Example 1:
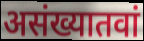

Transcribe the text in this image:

असंख्यातवां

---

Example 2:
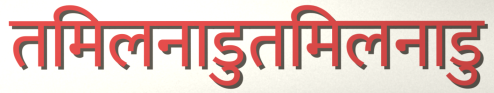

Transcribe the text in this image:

तमिलनाडुतमिलनाडु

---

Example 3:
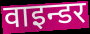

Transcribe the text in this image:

वाइन्डर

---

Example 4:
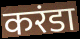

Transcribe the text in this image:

करंडा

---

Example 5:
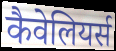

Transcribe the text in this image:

कैवेलियर्स